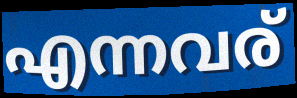
എന്നവര്